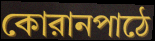
কোরানপাঠে